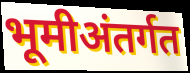
भूमीअंतर्गत